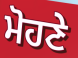
ਮੋਹਣੇ